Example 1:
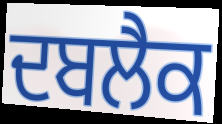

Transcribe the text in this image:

ਦਬਲੈਕ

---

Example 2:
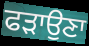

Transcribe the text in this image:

ਫੜਾਉਣਾ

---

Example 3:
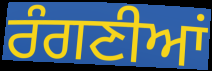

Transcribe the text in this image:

ਰੰਗਣੀਆਂ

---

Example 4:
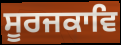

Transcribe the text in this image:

ਸੂਰਜਕਾਵਿ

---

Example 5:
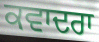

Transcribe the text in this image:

ਕਵਾਦਰਾ